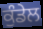
ਕੁੰਡੇਲ